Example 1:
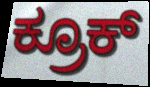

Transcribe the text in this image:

ಕ್ರೂಕ್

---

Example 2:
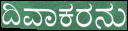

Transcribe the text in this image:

ದಿವಾಕರನು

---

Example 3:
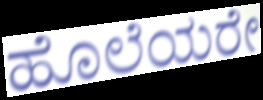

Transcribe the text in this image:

ಹೊಲೆಯರೇ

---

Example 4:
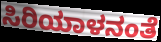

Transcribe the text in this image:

ಸಿರಿಯಾಳನಂತೆ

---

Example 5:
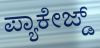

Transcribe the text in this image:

ಪ್ಯಾಕೇಜ್ಡ್